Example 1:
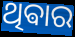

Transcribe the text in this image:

ଥିଵାର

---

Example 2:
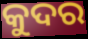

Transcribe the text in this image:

କୁଦର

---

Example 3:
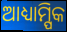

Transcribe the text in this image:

ଆଧ୍ୟାମ୍ପିକ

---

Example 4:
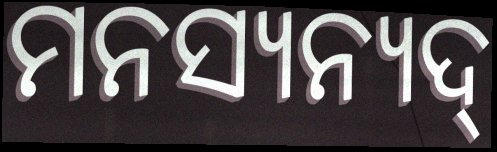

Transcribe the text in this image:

ମନସ୍ୟନ୍ୟଦ୍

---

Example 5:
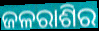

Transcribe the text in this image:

ଜଳରାଶିର